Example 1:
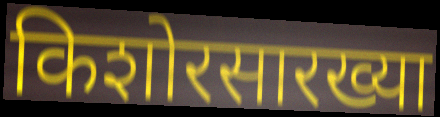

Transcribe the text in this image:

किशोरसारख्या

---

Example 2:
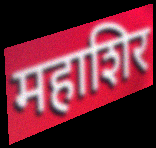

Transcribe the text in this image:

महाशिर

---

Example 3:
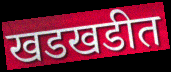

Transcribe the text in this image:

खडखडीत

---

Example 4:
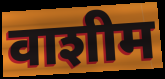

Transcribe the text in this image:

वाशीम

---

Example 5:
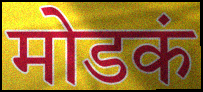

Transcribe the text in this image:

मोडकं